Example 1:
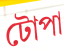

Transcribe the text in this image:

টোপা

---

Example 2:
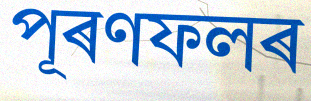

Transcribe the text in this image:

পূৰণফলৰ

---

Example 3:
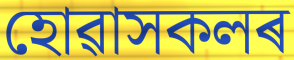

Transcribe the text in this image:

হোৱাসকলৰ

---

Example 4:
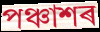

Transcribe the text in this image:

পঞ্চাশৰ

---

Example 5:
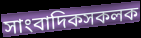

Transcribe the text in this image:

সাংবাদিকসকলক